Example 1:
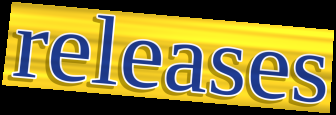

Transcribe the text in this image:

releases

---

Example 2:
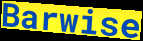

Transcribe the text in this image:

Barwise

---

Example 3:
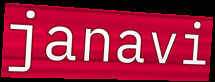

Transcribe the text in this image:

janavi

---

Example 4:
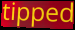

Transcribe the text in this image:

tipped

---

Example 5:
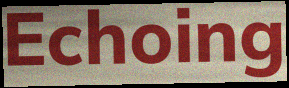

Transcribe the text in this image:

Echoing